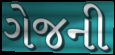
ગેજની